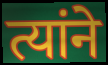
त्यांने